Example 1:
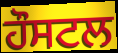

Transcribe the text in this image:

ਹੌਸਟਲ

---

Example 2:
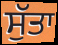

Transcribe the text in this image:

ਸੁੱਤਾ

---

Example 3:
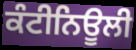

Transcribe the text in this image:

ਕੰਟੀਨਿਊਲੀ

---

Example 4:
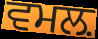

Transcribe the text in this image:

ਵਮਲ਼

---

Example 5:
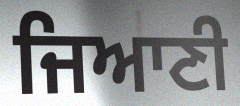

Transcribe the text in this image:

ਜਿਆਣੀ